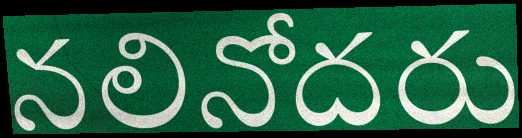
నలినోదరు